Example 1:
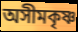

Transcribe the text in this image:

অসীমকৃষ্ণ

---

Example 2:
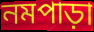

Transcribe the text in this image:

নমপাড়া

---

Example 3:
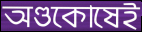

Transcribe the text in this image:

অণ্ডকোষেই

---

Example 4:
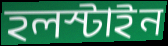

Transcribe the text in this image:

হলস্টাইন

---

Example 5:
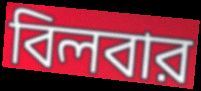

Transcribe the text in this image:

বিলবার